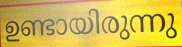
ഉണ്ടായിരുന്നു